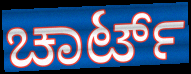
ಚಾರ್ಟ್